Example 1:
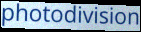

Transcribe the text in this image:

photodivision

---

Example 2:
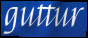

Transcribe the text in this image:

guttur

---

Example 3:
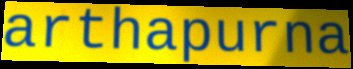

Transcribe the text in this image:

arthapurna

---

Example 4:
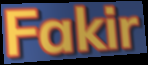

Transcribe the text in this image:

Fakir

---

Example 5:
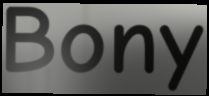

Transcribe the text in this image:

Bony